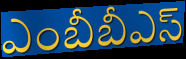
ఎంబీబీఎస్